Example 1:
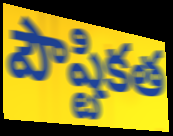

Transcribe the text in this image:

పౌష్టికత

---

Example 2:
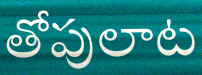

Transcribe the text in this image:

తోపులాట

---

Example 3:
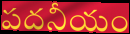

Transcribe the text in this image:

పదనీయం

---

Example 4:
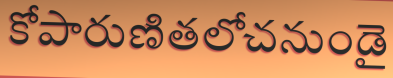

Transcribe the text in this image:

కోపారుణితలోచనుండై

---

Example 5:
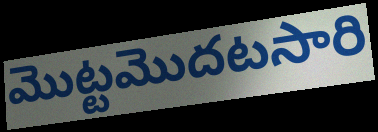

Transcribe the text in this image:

మొట్టమొదటసారి